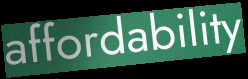
affordability